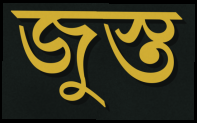
জুস্ত